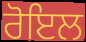
ਰੋਇਲ